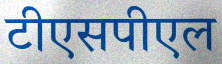
टीएसपीएल